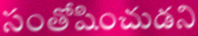
సంతోషించుడని